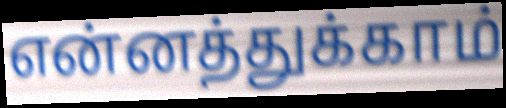
என்னத்துக்காம்